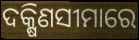
ଦକ୍ଷିଣସୀମାରେ